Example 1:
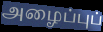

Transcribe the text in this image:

அழைப்புப்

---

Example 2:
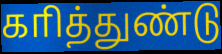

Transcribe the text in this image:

கரித்துண்டு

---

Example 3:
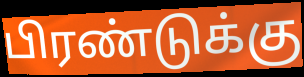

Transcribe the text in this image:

பிரண்டுக்கு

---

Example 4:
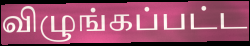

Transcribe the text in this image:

விழுங்கப்பட்ட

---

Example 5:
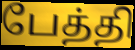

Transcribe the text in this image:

பேத்தி